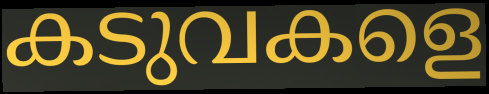
കടുവകളെ